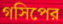
গসিপের